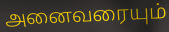
அனைவரையும்